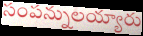
సంపన్నులయ్యారు